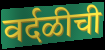
वर्दळीची